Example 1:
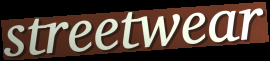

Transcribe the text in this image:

streetwear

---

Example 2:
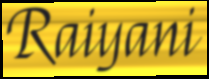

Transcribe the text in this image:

Raiyani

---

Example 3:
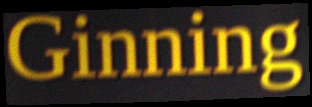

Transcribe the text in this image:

Ginning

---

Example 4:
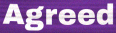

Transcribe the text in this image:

Agreed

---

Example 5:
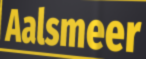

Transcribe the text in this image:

Aalsmeer